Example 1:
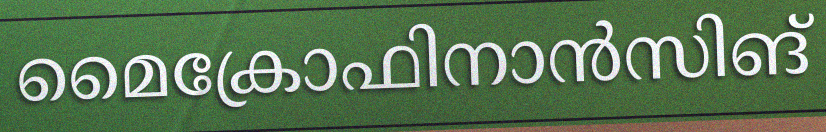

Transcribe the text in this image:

മൈക്രോഫിനാൻസിങ്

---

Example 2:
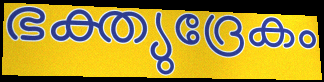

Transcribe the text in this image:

ഭക്ത്യുദ്രേകം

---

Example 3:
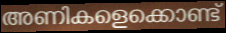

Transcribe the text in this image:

അണികളെക്കൊണ്ട്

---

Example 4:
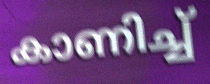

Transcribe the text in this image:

കാണിച്ച്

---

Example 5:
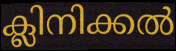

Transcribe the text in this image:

ക്ലിനിക്കൽ